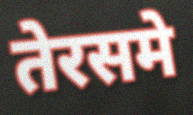
तेरसमे